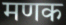
मणक